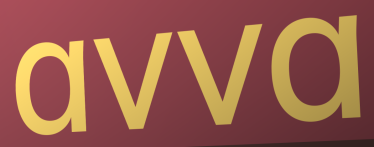
avva